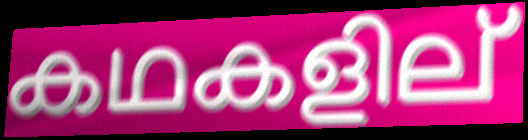
കഥകളില്